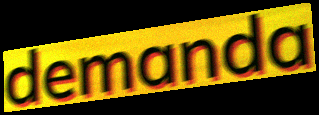
demanda